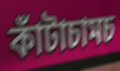
কাঁটাচামচ